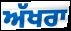
ਅੱਖਰਾ